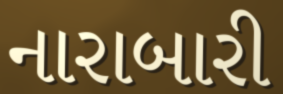
નારાબારી